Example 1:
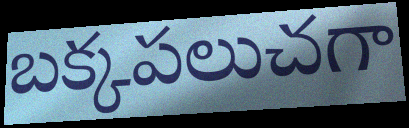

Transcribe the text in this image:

బక్కపలుచగా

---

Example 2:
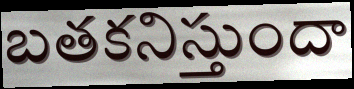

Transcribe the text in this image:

బతకనిస్తుందా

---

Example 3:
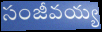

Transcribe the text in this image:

సంజీవయ్య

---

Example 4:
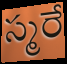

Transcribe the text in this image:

స్మరే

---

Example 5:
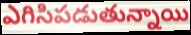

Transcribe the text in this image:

ఎగిసిపడుతున్నాయి